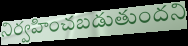
నిర్వహించబడుతుందని